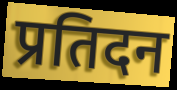
प्रतिदन